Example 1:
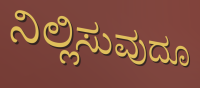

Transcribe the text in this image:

ನಿಲ್ಲಿಸುವುದೂ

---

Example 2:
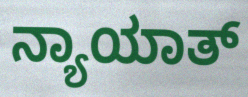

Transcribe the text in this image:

ನ್ಯಾಯಾತ್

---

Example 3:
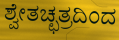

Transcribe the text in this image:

ಶ್ವೇತಚ್ಛತ್ರದಿಂದ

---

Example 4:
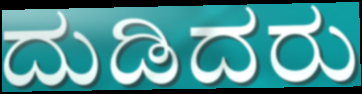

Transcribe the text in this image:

ದುಡಿದರು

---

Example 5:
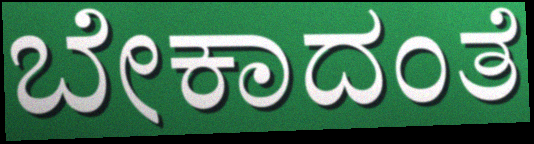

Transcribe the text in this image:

ಬೇಕಾದಂತೆ